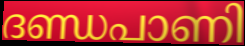
ദണ്ഡപാണി